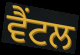
ਵੈਂਟਲ